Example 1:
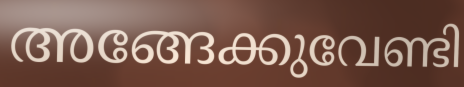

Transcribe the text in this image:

അങ്ങേക്കുവേണ്ടി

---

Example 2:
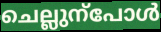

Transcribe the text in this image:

ചെല്ലുന്പോൾ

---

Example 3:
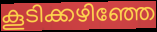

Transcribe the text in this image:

കൂടിക്കഴിഞ്ഞേ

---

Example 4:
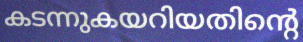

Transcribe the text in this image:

കടന്നുകയറിയതിന്റെ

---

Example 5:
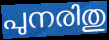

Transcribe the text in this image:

പുനരിതു